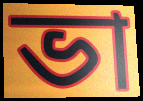
ভা